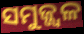
ସମୁଜ୍ଜ୍ୱଳ